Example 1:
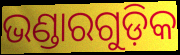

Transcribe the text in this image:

ଭଣ୍ଡାରଗୁଡ଼ିକ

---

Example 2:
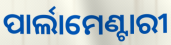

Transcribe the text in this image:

ପାର୍ଲାମେଣ୍ଟାରୀ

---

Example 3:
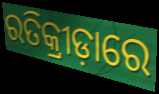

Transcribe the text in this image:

ରତିକ୍ରୀଡ଼ାରେ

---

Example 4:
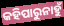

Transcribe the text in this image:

କହିପାରୁନାହୁଁ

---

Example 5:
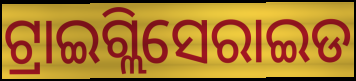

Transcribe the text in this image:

ଟ୍ରାଇଗ୍ଲିସେରାଇଡ